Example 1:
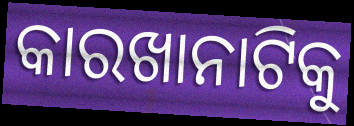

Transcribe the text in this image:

କାରଖାନାଟିକୁ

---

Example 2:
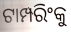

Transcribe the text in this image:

ଟାମ୍ପରିଂକୁ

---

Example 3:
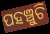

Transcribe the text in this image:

ପହଞ୍ଚୁଚି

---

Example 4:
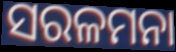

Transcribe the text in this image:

ସରଳମନା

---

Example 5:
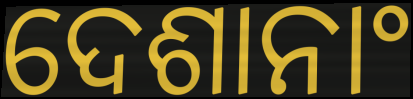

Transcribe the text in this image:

ଦେଶାନାଂ